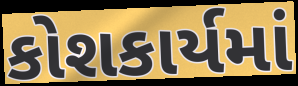
કોશકાર્યમાં